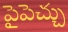
పైపెచ్చు